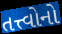
તત્ત્વોનો